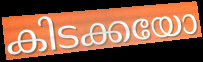
കിടക്കയോ